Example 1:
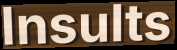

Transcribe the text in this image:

Insults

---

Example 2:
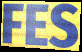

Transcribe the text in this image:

FES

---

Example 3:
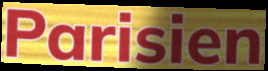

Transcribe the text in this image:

Parisien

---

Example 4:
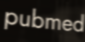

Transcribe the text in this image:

pubmed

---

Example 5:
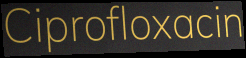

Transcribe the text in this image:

Ciprofloxacin